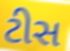
ટીસ